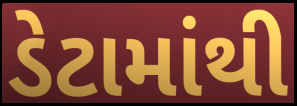
ડેટામાંથી